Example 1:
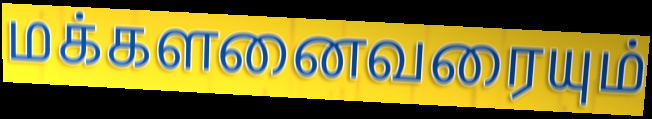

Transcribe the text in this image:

மக்களனைவரையும்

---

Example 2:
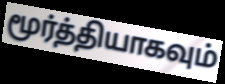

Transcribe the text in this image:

மூர்த்தியாகவும்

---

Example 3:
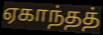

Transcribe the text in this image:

ஏகாந்தத்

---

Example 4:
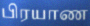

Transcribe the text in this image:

பிரயாண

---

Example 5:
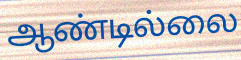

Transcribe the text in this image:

ஆண்டில்லை